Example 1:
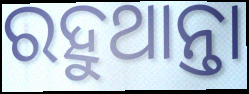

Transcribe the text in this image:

ରହୁଥାନ୍ତା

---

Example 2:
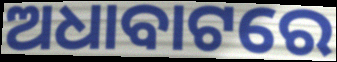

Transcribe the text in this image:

ଅଧାବାଟରେ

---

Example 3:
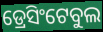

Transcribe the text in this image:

ଡ୍ରେସିଂଟେବୁଲ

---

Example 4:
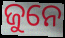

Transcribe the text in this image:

ଜୁନେ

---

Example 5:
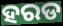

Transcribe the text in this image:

ହରଡ